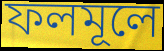
ফলমূলে